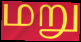
மறு